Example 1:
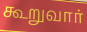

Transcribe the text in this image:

கூறுவார்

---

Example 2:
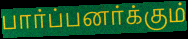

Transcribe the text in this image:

பார்ப்பனர்க்கும்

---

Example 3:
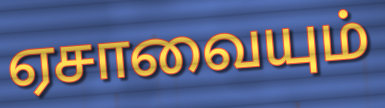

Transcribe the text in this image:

ஏசாவையும்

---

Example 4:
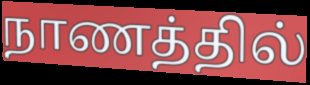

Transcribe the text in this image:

நாணத்தில்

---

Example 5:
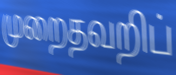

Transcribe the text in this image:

முறைதவறிப்